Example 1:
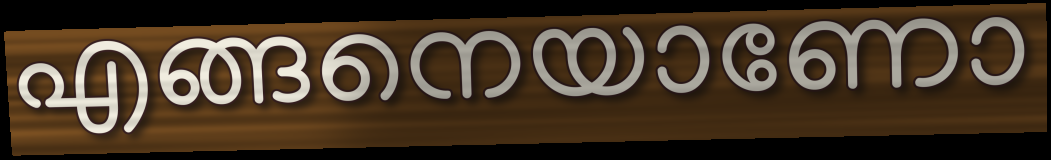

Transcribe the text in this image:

എങ്ങനെയാണോ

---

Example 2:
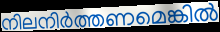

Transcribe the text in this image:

നിലനിർത്തണമെങ്കിൽ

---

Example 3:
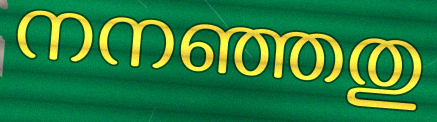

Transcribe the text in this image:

നനഞ്ഞതു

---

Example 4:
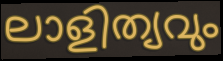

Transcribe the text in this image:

ലാളിത്യവും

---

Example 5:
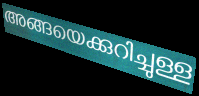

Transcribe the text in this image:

അങ്ങയെക്കുറിച്ചുള്ള